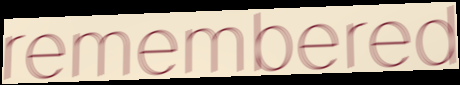
remembered